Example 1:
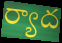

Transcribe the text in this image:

ర్యాద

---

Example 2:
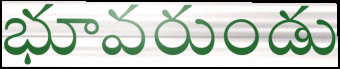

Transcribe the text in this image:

భూవరుండు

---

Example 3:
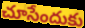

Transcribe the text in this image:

చూసేందుకు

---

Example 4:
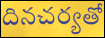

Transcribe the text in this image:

దినచర్యతో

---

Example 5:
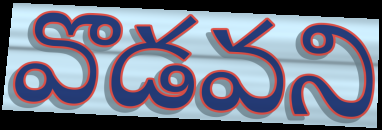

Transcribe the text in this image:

వొడవని